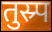
तुस्र्प